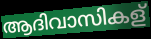
ആദിവാസികള്